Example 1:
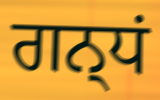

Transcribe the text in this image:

ਗਨ੍ਧਂ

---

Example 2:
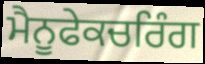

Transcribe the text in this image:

ਮੈਨੂਫੇਕਚਰਿੰਗ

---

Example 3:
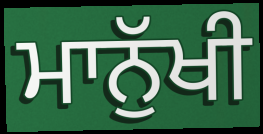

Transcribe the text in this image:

ਮਾਨੁੱਖੀ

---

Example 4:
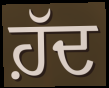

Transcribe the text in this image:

ਹ਼ੱਦ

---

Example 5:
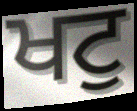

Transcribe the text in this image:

ਖਟੁ